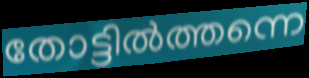
തോട്ടിൽത്തന്നെ